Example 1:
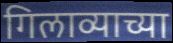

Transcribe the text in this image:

गिलाव्याच्या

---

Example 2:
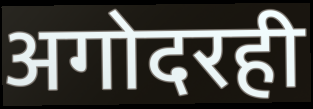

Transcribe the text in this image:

अगोदरही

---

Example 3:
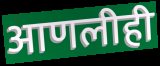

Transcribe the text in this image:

आणलीही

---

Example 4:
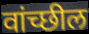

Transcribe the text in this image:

वांच्छील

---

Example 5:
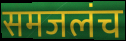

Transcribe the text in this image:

समजलंच